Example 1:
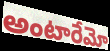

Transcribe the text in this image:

అంటారేమో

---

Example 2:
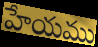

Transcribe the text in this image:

హేయము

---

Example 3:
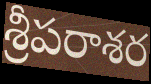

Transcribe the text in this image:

శ్రీపరాశర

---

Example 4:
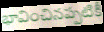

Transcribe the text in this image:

భావించినప్పటికీ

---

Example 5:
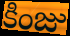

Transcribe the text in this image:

కింజు